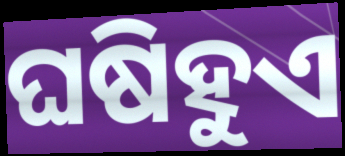
ଘଷିହୁଏ